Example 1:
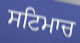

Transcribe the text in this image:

ਸਟਿਮਾਚ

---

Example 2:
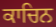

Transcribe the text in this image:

ਕਾਚਿਨ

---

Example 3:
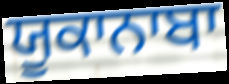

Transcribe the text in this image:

ਯੂਕਾਨਾਬਾ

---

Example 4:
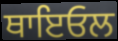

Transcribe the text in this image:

ਥਾਇਓਲ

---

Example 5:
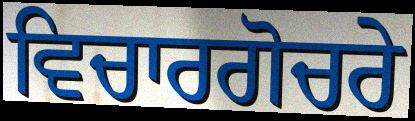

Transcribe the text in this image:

ਵਿਚਾਰਗੋਚਰੇ